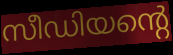
സീഡിയന്റെ